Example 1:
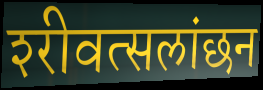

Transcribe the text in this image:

श्रीवत्सलांछन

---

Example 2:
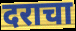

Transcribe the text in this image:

दराचा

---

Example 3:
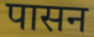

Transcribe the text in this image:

पासन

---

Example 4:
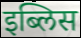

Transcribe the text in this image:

इब्लिस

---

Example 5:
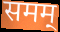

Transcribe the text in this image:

समम्